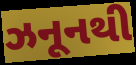
ઝનૂનથી